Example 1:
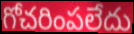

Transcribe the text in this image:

గోచరింపలేదు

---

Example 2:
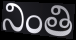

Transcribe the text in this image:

నింతి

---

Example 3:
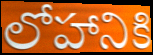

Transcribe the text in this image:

లోహానికి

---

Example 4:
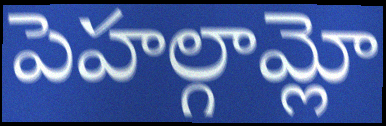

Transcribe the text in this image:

పెహల్గామ్లో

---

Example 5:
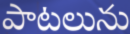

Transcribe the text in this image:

పాటలును